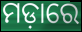
ମଡ଼ାରେ